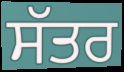
ਸੱਤਰ